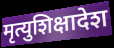
मृत्युशिक्षादेश